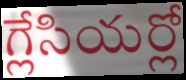
గ్లేసియర్లో